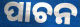
ପାଚନ